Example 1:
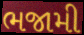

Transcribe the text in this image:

ભજામી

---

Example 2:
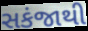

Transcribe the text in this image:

સકંજાથી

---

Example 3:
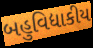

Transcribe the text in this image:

બહુવિદ્યાકીય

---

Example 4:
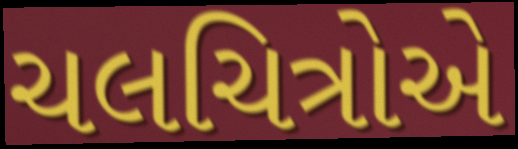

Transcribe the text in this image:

ચલચિત્રોએ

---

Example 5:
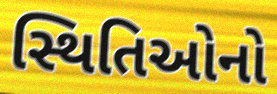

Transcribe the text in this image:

સ્થિતિઓનો